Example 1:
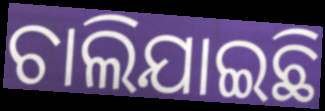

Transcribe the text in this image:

ଚାଲିଯାଇଛି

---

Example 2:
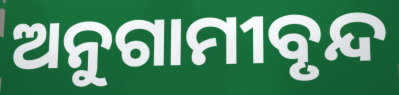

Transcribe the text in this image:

ଅନୁଗାମୀବୃନ୍ଦ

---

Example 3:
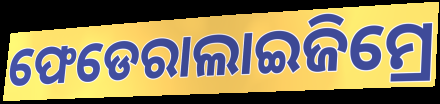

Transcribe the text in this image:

ଫେଡେରାଲାଇଜିମ୍ରେ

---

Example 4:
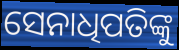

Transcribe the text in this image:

ସେନାଧିପତିଙ୍କୁ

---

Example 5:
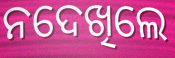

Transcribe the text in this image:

ନଦେଖିଲେ